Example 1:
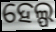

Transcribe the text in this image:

ହେଲ୍ପ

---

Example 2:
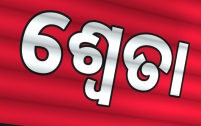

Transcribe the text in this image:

ଶ୍ୱେତା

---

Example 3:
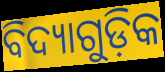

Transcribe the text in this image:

ବିଦ୍ୟାଗୁଡ଼ିକ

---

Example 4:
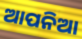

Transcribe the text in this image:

ଆପନିଆ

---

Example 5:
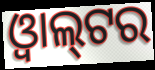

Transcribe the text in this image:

ଓ୍ୱାଲ୍‍ଟର